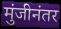
मुंजीनंतर